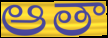
ఆతా